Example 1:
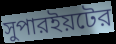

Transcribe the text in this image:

সুপারইয়টের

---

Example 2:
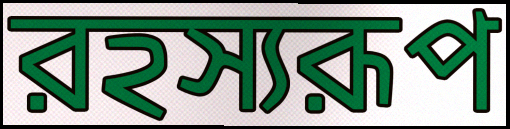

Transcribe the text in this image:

রহস্যরূপ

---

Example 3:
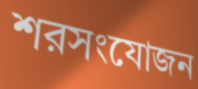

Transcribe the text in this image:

শরসংযোজন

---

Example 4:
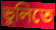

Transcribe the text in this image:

ভুলিতে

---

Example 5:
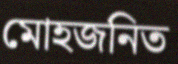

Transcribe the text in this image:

মোহজনিত